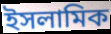
ইসলামিক